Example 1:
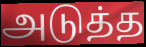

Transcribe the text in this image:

அடுத்த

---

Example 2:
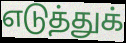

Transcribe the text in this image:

எடுத்துக்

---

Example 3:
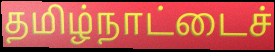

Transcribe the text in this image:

தமிழ்நாட்டைச்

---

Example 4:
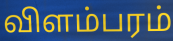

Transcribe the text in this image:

விளம்பரம்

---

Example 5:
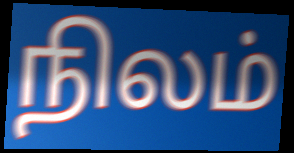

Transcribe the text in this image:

நிலம்